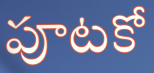
పూటకో